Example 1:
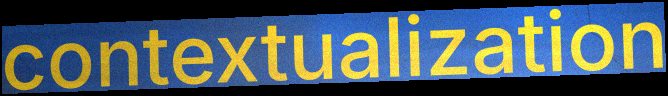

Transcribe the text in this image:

contextualization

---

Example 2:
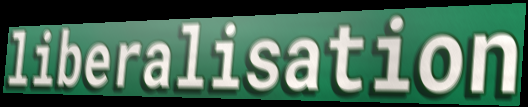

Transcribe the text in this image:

liberalisation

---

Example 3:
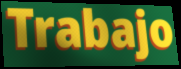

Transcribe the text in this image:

Trabajo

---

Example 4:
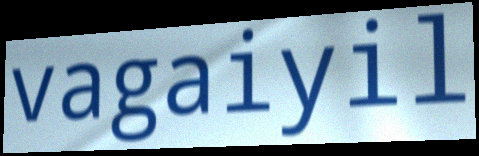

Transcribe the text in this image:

vagaiyil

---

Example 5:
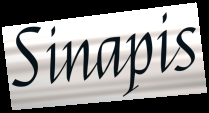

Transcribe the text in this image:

Sinapis